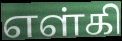
எள்கி